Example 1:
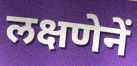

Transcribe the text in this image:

लक्षणेनें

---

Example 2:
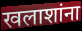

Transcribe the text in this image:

खलाशांना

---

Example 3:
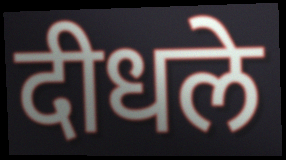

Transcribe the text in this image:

दीधले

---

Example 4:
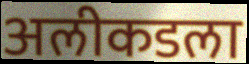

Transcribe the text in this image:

अलीकडला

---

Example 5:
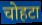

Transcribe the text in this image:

चोहटा